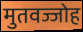
मुतवज्जोह